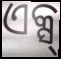
ଏକ୍ସ୍